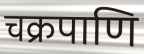
चक्रपाणि